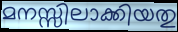
മനസ്സിലാക്കിയതു